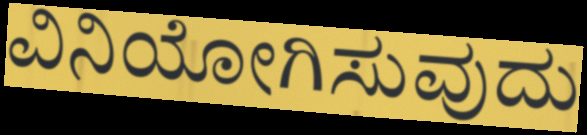
ವಿನಿಯೋಗಿಸುವುದು